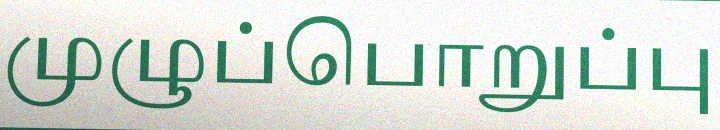
முழுப்பொறுப்பு